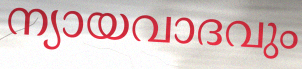
ന്യായവാദവും